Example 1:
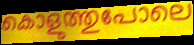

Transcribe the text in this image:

കൊളുത്തുപോലെ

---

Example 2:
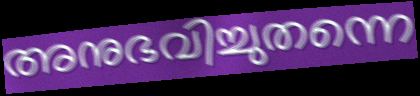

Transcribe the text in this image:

അനുഭവിച്ചുതന്നെ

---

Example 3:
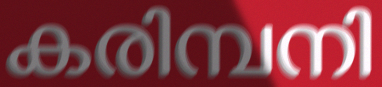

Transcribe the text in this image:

കരിമ്പനി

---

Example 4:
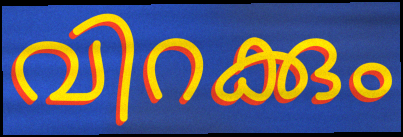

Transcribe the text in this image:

വിറക്കും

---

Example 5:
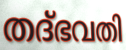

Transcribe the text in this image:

തദ്ഭവതി